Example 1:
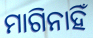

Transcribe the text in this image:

ମାଗିନାହିଁ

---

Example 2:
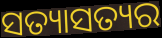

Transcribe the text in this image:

ସତ୍ୟାସତ୍ୟର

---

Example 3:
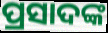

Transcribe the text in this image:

ପ୍ରସାଦଙ୍କ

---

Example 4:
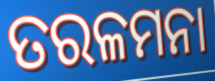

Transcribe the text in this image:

ତରଳମନା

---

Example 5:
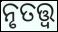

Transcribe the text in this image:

ନୃତତ୍ତ୍ୱ